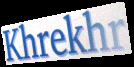
Khrekhr